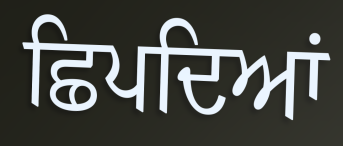
ਛਿਪਦਿਆਂ